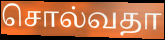
சொல்வதா